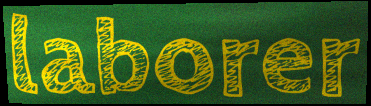
laborer